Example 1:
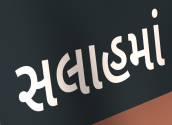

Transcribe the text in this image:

સલાહમાં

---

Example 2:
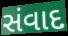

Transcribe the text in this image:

સંવાદ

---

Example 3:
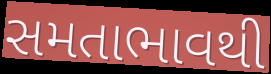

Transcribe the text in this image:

સમતાભાવથી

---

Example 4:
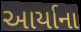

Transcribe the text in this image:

આર્યાના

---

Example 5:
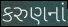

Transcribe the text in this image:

કરુણનાં